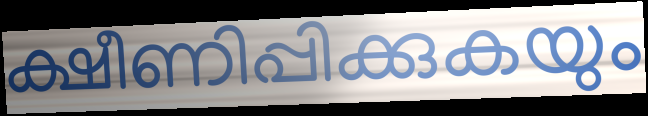
ക്ഷീണിപ്പിക്കുകയും